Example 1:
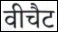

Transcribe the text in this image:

वीचैट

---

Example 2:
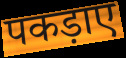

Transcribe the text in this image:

पकड़ाए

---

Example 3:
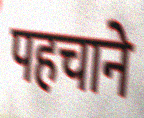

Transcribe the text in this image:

पहचाने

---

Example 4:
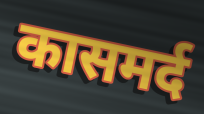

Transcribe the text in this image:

कासमर्द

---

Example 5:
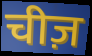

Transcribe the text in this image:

चीज़